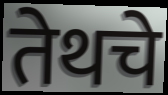
तेथचे